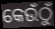
କେଉଁଠୁଁ